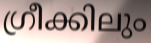
ഗ്രീക്കിലും